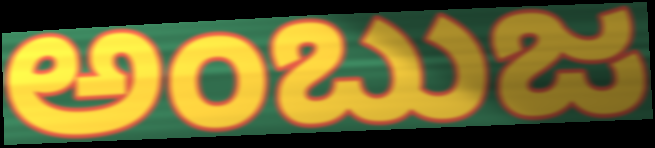
ಅಂಬುಜ